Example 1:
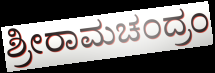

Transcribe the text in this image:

ಶ್ರೀರಾಮಚಂದ್ರಂ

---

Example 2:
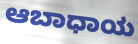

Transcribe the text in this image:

ಆಬಾಧಾಯ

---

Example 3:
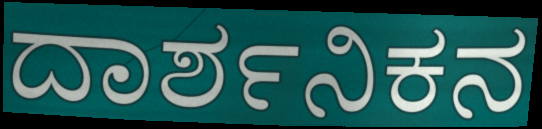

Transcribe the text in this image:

ದಾರ್ಶನಿಕನ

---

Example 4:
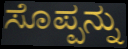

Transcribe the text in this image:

ಸೊಪ್ಪನ್ನು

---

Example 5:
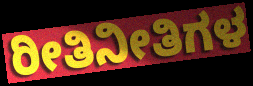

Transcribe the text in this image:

ರೀತಿನೀತಿಗಳ